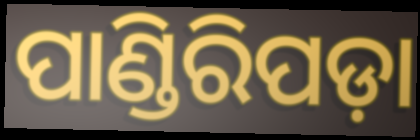
ପାଣ୍ଡିରିପଡ଼ା